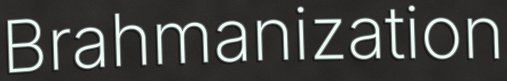
Brahmanization